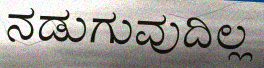
ನಡುಗುವುದಿಲ್ಲ